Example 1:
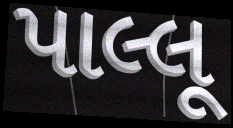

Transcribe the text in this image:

પાલ્લૂ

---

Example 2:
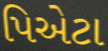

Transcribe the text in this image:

પિએટા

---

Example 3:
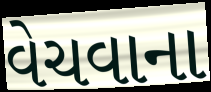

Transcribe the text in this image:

વેચવાના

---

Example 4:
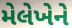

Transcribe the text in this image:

મેલેખેને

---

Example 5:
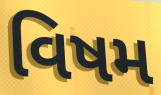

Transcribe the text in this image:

વિષમ